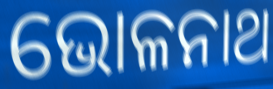
ଭୋଳନାଥ